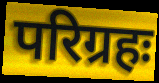
परिग्रहः